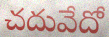
చదువేదో